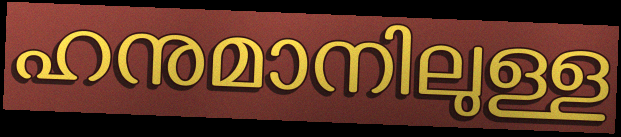
ഹനുമാനിലുള്ള